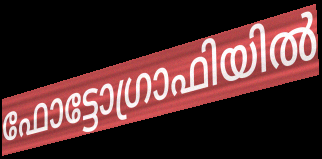
ഫോട്ടോഗ്രാഫിയിൽ